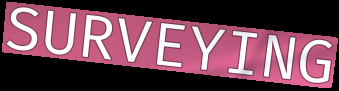
SURVEYING